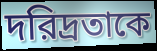
দরিদ্রতাকে